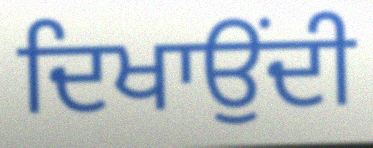
ਦਿਖਾਉਂਦੀ